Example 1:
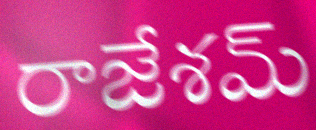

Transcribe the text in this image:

రాజేశమ్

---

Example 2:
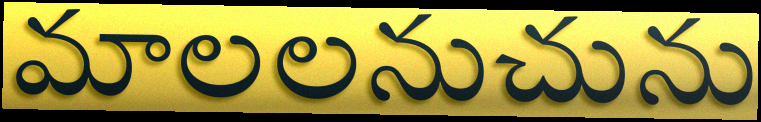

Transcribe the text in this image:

మాలలనుచును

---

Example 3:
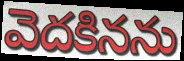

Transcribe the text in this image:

వెదకినను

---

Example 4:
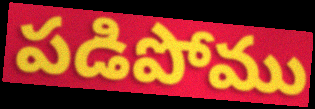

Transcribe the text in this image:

పడిపోము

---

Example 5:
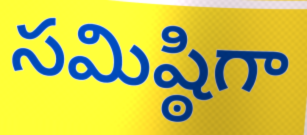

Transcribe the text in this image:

సమిష్ఠిగా